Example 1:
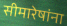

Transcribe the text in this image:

सीमारेषांना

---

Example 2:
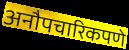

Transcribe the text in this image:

अनौपचारिकपणे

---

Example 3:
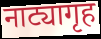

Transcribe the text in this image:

नाट्यागृह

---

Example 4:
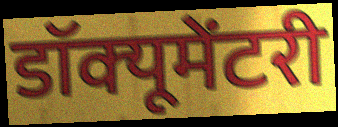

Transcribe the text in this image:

डॉक्यूमेंटरी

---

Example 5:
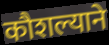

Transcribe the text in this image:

कौशल्याने